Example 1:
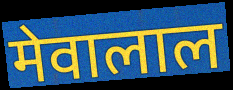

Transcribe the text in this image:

मेवालाल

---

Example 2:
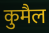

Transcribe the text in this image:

कुमैल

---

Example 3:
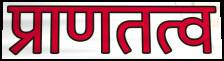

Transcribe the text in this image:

प्राणतत्व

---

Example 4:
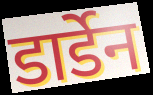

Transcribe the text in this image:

डार्डेन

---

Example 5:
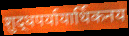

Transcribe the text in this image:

शुद्धपर्यायार्थिकनय